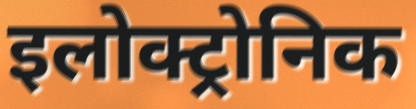
इलोक्ट्रोनिक